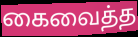
கைவைத்த